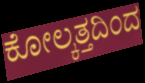
ಕೋಲ್ಕತ್ತದಿಂದ